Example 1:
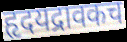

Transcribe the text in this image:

हृदयद्रावकच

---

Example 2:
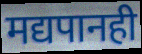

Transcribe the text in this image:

मद्यपानही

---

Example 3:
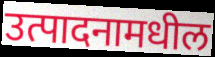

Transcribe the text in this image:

उत्पादनामधील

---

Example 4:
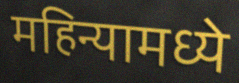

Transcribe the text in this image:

महिन्यामध्ये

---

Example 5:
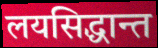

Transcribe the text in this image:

लयसिद्धान्त